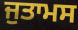
ਜੁਤਾਮਸ